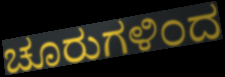
ಚೂರುಗಳಿಂದ